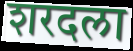
शरदला